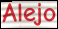
Alejo